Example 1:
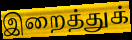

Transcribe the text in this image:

இறைத்துக்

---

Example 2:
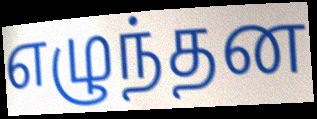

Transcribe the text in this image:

எழுந்தன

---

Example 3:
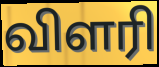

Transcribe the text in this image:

விளரி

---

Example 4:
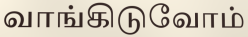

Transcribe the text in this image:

வாங்கிடுவோம்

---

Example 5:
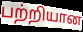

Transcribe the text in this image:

பற்றியான